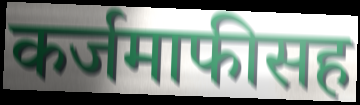
कर्जमाफीसह